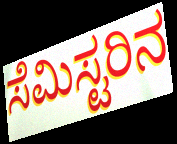
ಸೆಮಿಸ್ಟರಿನ